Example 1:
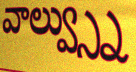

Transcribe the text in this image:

వాల్వ్స్ను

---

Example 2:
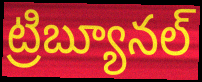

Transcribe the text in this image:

ట్రిబ్యూనల్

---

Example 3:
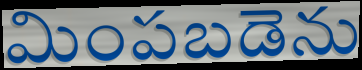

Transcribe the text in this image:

మింపబడెను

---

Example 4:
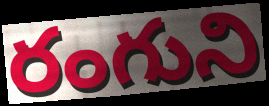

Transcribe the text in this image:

రంగుని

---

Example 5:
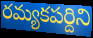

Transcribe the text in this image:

రమ్యకపర్దిని